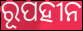
ରୂପହୀନ